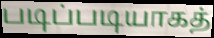
படிப்படியாகத்